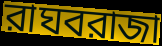
রাঘবরাজা